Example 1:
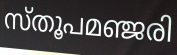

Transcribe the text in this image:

സ്തൂപമഞ്ജരി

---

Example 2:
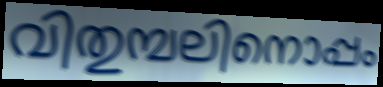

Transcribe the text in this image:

വിതുമ്പലിനൊപ്പം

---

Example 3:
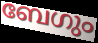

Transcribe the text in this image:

ബേഗും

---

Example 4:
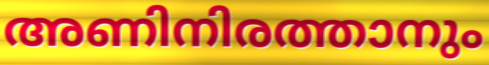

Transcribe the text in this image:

അണിനിരത്താനും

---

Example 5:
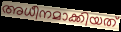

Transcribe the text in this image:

അധീനമാക്കിയത്